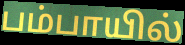
பம்பாயில்